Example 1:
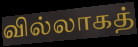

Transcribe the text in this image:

வில்லாகத்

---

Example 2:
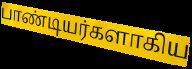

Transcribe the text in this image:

பாண்டியர்களாகிய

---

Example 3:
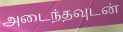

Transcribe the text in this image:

அடைந்தவுடன்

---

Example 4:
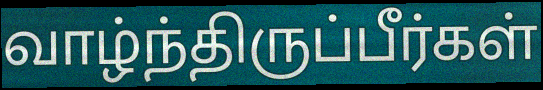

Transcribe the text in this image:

வாழ்ந்திருப்பீர்கள்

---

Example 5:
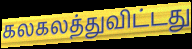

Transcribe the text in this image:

கலகலத்துவிட்டது